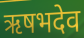
ऋषभदेव